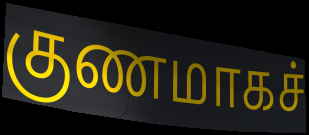
குணமாகச்